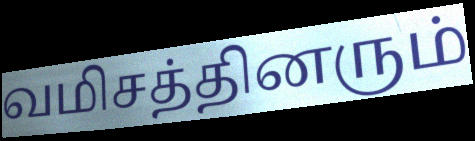
வமிசத்தினரும்